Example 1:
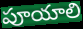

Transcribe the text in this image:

పూయాలి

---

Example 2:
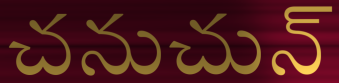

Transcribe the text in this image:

చనుచున్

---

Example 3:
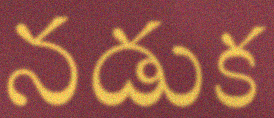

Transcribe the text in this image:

నడుక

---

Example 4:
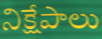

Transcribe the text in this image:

నిక్షేపాలు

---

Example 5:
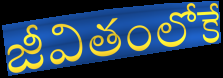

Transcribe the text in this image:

జీవితంలోకే